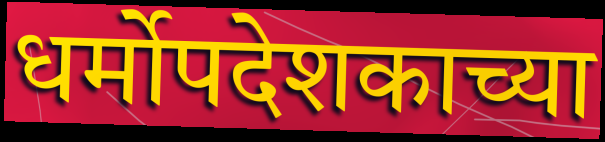
धर्मोपदेशकाच्या